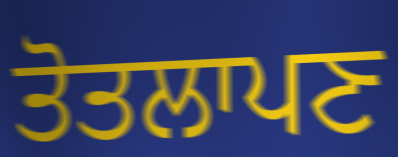
ਤੋਤਲਾਪਣ